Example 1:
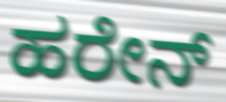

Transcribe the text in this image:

ಹರೇನ್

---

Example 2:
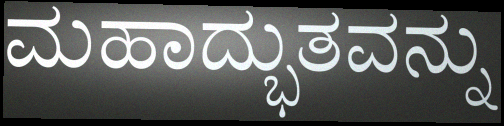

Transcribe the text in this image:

ಮಹಾದ್ಭುತವನ್ನು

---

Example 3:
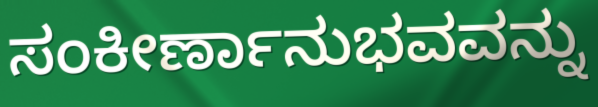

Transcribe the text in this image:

ಸಂಕೀರ್ಣಾನುಭವವನ್ನು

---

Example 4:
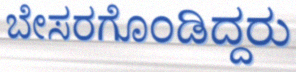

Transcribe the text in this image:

ಬೇಸರಗೊಂಡಿದ್ದರು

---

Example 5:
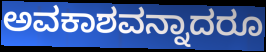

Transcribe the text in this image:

ಅವಕಾಶವನ್ನಾದರೂ